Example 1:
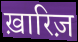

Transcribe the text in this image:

ख़ारिज़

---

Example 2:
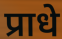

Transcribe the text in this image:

प्राधे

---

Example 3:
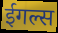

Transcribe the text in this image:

ईगल्स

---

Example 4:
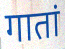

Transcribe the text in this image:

गातां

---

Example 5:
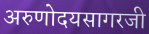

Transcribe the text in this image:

अरुणोदयसागरजी